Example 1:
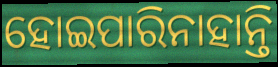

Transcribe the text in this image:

ହୋଇପାରିନାହାନ୍ତି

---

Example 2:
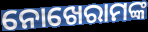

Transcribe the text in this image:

ନୋଖେରାମଙ୍କ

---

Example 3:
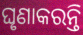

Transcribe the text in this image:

ଘୃଣାକରନ୍ତି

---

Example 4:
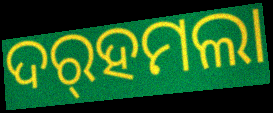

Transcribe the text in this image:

ଦର୍‌ହମଲା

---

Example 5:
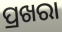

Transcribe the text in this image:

ପ୍ରଖରା